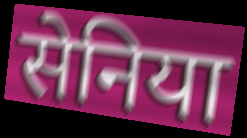
सेनिया